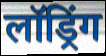
लॉड्रिंग